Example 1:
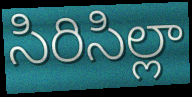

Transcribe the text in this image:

సిరిసిల్లా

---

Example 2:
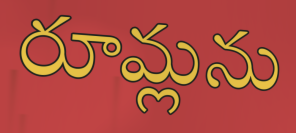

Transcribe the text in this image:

రూమ్లను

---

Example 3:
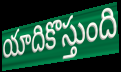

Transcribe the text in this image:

యాదికొస్తుంది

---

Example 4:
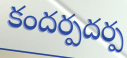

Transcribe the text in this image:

కందర్పదర్ప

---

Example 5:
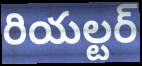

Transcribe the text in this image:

రియల్టర్